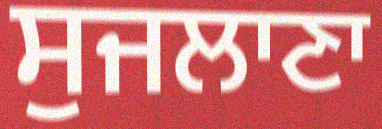
ਸੁਜਲਾਣਾ